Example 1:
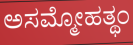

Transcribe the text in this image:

ಅಸಮ್ಮೋಹತ್ಥಂ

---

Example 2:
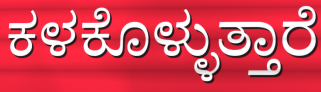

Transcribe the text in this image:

ಕಳಕೊಳ್ಳುತ್ತಾರೆ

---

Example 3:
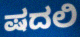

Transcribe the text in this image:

ಷದಲಿ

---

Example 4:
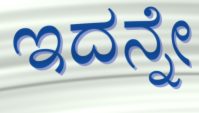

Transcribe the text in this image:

ಇದನ್ನೇ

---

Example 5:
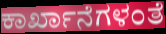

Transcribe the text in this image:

ಕಾರ್ಖಾನೆಗಳಂತೆ